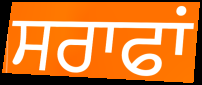
ਸਰਾਫਾਂ